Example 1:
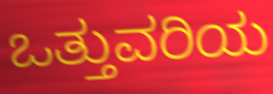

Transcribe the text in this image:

ಒತ್ತುವರಿಯ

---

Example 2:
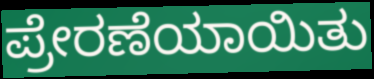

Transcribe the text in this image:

ಪ್ರೇರಣೆಯಾಯಿತು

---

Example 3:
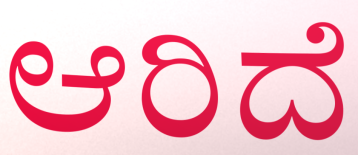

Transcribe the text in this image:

ಆರಿದೆ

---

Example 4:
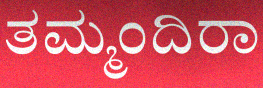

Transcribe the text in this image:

ತಮ್ಮಂದಿರಾ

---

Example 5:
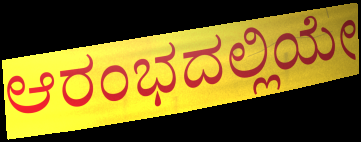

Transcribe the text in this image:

ಆರಂಭದಲ್ಲಿಯೇ